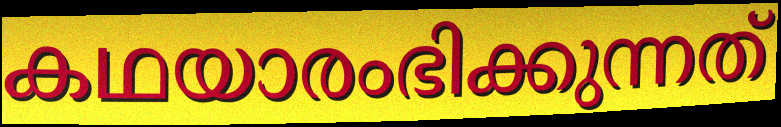
കഥയാരംഭിക്കുന്നത്